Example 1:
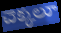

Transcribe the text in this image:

చెక్కలూ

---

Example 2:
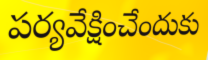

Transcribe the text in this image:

పర్యవేక్షించేందుకు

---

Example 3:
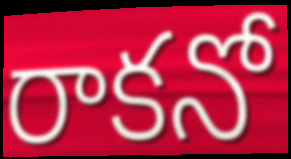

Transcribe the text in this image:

రాకనో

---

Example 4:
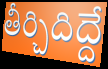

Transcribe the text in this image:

తీర్చిదిద్దే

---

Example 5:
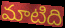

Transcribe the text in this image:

మాటిది